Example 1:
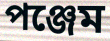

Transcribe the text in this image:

পঞ্জেম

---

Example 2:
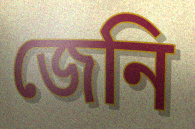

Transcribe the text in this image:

জেনি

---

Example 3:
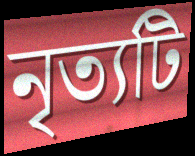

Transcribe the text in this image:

নৃত্যটি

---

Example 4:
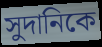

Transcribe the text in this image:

সুদানিকে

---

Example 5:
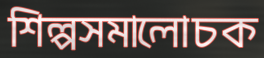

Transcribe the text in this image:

শিল্পসমালোচক